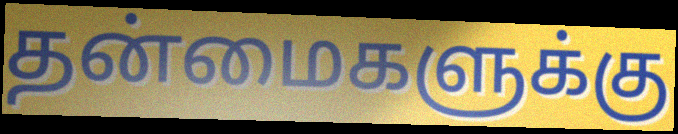
தன்மைகளுக்கு